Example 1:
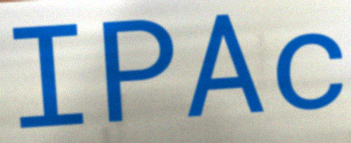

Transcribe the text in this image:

IPAc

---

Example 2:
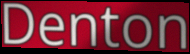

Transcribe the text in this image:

Denton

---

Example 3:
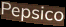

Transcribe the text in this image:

Pepsico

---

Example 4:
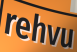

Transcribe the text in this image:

rehvu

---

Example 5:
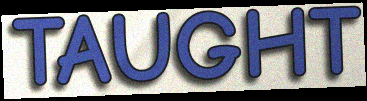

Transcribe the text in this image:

TAUGHT